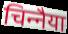
चिन्नैया